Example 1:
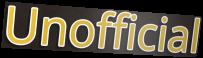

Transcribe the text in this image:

Unofficial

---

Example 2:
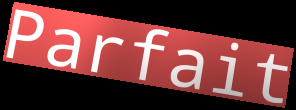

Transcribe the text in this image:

Parfait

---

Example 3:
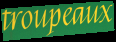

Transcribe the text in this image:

troupeaux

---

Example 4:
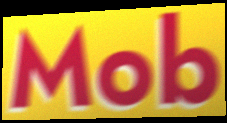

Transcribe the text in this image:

Mob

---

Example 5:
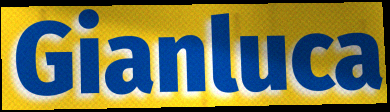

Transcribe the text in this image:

Gianluca